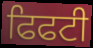
ਫਿਫਟੀ